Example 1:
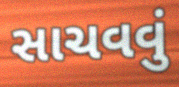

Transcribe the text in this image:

સાચવવું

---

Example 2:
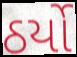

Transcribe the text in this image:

ઠર્યો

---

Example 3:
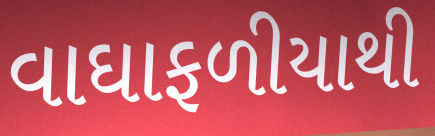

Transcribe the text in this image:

વાઘાફળીયાથી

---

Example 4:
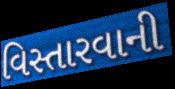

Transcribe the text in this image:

વિસ્તારવાની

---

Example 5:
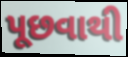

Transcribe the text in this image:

પૂછવાથી